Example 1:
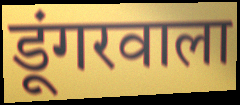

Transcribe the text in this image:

डूंगरवाला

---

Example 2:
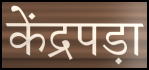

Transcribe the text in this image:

केंद्रपड़ा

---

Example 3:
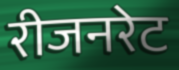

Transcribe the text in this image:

रीजनरेट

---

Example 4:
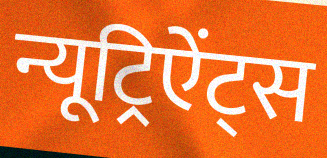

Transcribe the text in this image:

न्यूट्रिऐंट्स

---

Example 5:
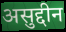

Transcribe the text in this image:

असुद्दीन